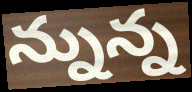
న్నున్న